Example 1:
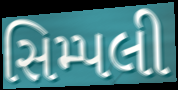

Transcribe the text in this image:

સિમ્પલી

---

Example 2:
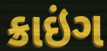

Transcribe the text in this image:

ક્રાઇંગ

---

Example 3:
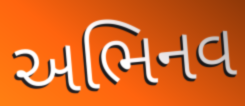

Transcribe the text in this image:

અભિનવ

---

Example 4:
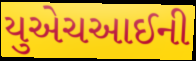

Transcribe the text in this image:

યુએચઆઈની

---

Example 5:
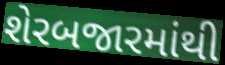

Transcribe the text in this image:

શેરબજારમાંથી